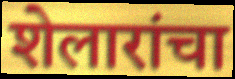
शेलारांचा